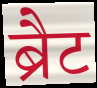
ब्रैट